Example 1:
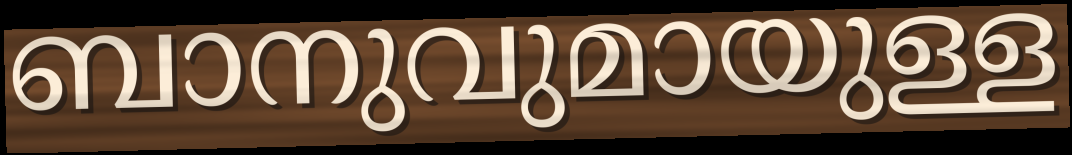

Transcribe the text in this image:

ബാനുവുമായുള്ള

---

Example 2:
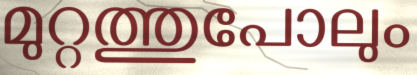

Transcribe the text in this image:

മുറ്റത്തുപോലും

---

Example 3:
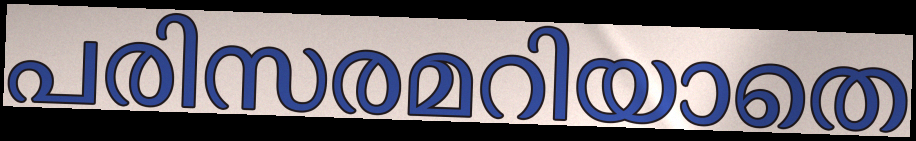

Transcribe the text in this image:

പരിസരമറിയാതെ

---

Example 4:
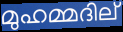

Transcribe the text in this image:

മുഹമ്മദില്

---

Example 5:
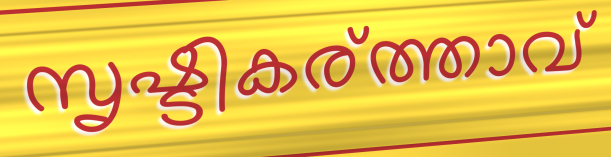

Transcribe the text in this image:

സൃഷ്ടികര്ത്താവ്